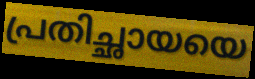
പ്രതിച്ഛായയെ